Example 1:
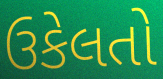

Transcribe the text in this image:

ઉકેલતો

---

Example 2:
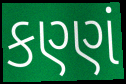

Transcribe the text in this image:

કણ્ણં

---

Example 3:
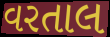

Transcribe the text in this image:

વરતાલ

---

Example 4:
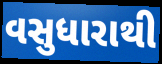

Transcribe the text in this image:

વસુધારાથી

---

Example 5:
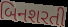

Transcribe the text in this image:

બિનશરતી